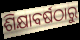
ଶିକ୍ଷାବର୍ଷଠାରୁ